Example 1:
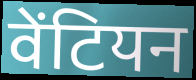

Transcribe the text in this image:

वेंटियन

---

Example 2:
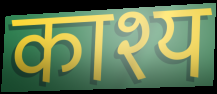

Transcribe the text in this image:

काश्य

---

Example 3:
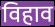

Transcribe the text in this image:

विहाव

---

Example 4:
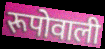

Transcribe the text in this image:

रूपोवाली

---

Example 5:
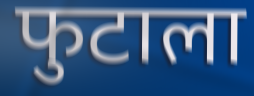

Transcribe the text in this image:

फुटाला